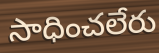
సాధించలేరు